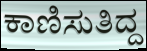
ಕಾಣಿಸುತಿದ್ದ